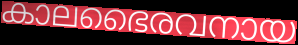
കാലഭൈരവനായ